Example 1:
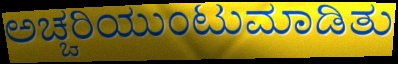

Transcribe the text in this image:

ಅಚ್ಚರಿಯುಂಟುಮಾಡಿತು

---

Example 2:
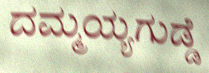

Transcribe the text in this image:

ದಮ್ಮಯ್ಯಗುಡ್ಡೆ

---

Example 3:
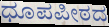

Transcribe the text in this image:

ಧೂಪಪೀಠದ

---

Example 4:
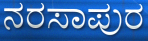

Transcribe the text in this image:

ನರಸಾಪುರ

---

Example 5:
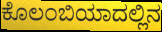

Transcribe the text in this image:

ಕೊಲಂಬಿಯಾದಲ್ಲಿನ